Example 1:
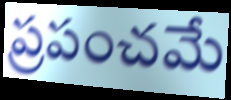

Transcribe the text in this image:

ప్రపంచమే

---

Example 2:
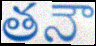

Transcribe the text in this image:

తనౌ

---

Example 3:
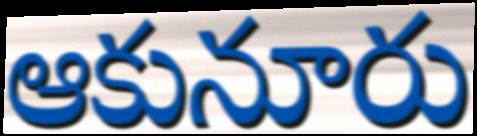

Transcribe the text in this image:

ఆకునూరు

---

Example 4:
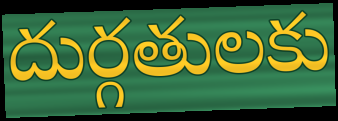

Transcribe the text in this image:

దుర్గతులకు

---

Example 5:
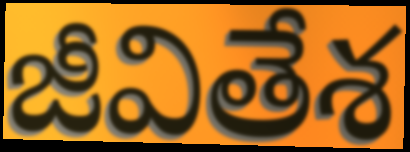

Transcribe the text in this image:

జీవితేశ